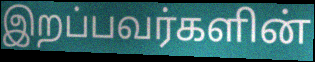
இறப்பவர்களின்